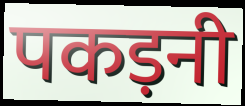
पकड़नी